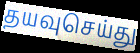
தயவுசெய்து